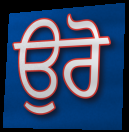
ਉਰੋ